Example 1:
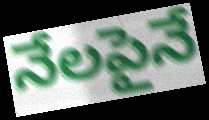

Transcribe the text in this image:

నేలపైనే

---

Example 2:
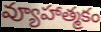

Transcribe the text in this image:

వ్యూహాత్మకం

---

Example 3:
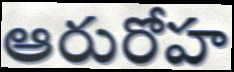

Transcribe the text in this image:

ఆరురోహ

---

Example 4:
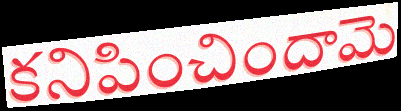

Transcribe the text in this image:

కనిపించిందామె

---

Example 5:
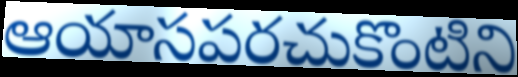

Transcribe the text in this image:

ఆయాసపరచుకొంటిని